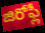
జిరోఫ్లీ